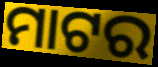
ମାଟର